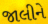
જાલીને